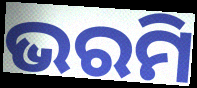
ଭରମି